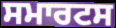
ਸਮਾਰਟਸ